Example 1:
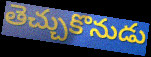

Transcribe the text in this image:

తెచ్చుకొనుడు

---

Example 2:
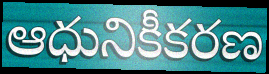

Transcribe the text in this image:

ఆధునికీకరణ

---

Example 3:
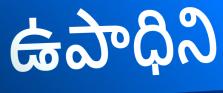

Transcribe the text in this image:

ఉపాధిని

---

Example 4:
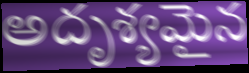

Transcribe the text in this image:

అదృశ్యమైన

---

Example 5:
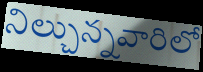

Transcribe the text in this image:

నిల్చున్నవారిలో